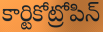
కార్టికోట్రోపిన్